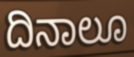
ದಿನಾಲೂ